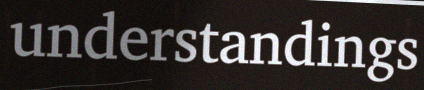
understandings